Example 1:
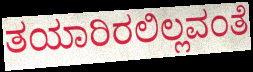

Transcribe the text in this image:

ತಯಾರಿರಲಿಲ್ಲವಂತೆ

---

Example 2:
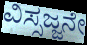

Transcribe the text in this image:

ವಿಸ್ಸಜ್ಜನೇ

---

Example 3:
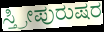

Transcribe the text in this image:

ಸ್ತ್ರೀಪುರುಷರ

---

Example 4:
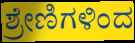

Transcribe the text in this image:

ಶ್ರೇಣಿಗಳಿಂದ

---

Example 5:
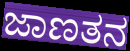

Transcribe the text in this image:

ಜಾಣತನ